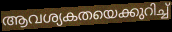
ആവശ്യകതയെക്കുറിച്ച്